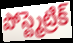
పోస్ట్మెట్రిక్